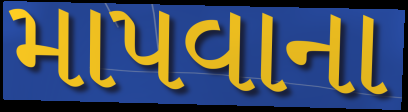
માપવાના